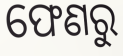
ଫେଣରୁ